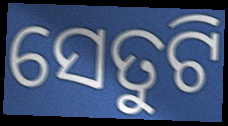
ସେତୁଟି